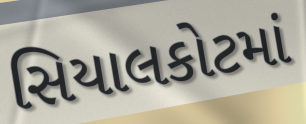
સિયાલકોટમાં